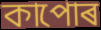
কাপোৰ